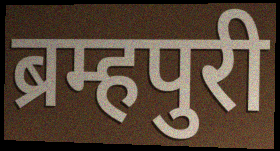
ब्रम्हपुरी